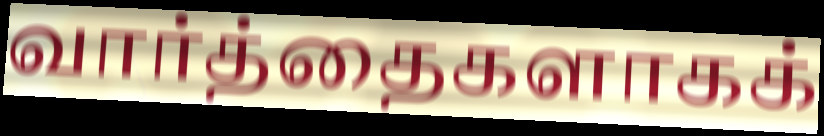
வார்த்தைகளாகக்